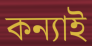
কন্যাই